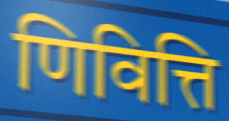
णिवित्ति